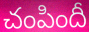
చంపిందీ